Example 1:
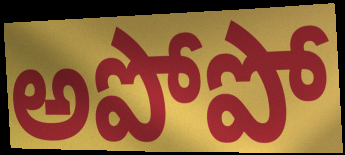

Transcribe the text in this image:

అపోపో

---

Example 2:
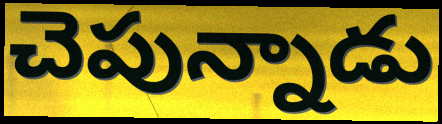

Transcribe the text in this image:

చెపున్నాడు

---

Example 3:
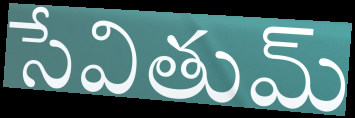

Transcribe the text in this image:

సేవితుమ్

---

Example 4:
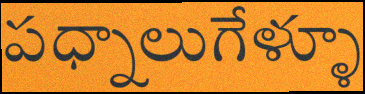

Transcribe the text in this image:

పధ్నాలుగేళ్ళూ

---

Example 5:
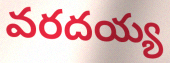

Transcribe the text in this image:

వరదయ్య